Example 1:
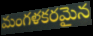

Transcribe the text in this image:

మంగళకరమైన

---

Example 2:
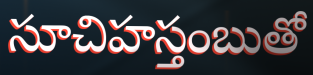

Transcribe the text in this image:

సూచిహస్తంబుతో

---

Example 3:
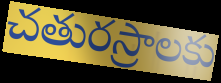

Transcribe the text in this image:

చతురస్రాలకు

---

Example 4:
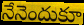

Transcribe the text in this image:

నేనెందుకూ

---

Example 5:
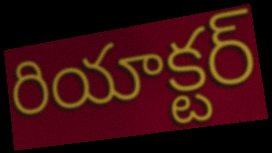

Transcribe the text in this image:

రియాక్టర్